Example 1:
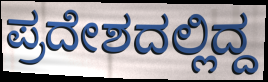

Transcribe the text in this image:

ಪ್ರದೇಶದಲ್ಲಿದ್ದ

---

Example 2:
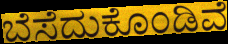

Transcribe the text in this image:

ಬೆಸೆದುಕೊಂಡಿವೆ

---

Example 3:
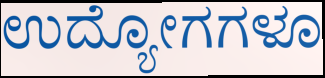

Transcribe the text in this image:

ಉದ್ಯೋಗಗಳೂ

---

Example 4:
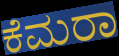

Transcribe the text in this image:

ಕೆಮರಾ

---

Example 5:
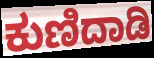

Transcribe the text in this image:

ಕುಣಿದಾಡಿ